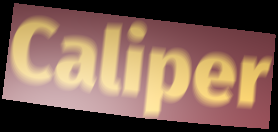
Caliper